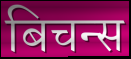
बिचन्स